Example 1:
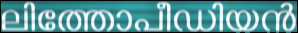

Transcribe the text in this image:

ലിത്തോപീഡിയൻ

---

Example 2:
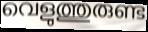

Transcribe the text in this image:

വെളുത്തുരുണ്ട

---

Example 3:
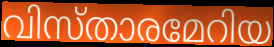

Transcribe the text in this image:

വിസ്താരമേറിയ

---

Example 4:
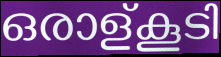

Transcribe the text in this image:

ഒരാള്കൂടി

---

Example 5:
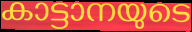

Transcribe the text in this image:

കാട്ടാനയുടെ